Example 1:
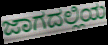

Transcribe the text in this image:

ಜಾಗದಲ್ಲಿಯ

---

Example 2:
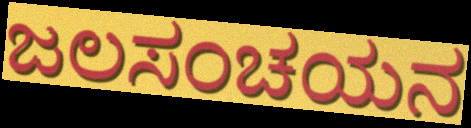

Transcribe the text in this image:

ಜಲಸಂಚಯನ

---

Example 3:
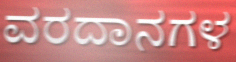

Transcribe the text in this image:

ವರದಾನಗಳ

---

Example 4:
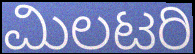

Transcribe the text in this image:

ಮಿಲಟರಿ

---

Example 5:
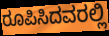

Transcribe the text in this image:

ರೂಪಿಸಿದವರಲ್ಲಿ